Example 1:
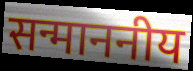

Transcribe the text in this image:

सन्माननीय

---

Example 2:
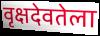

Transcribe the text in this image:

वृक्षदेवतेला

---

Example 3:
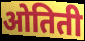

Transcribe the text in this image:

ओतिती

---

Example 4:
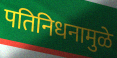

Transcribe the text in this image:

पतिनिधनामुळे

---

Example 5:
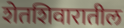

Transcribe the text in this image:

शेतशिवारातील